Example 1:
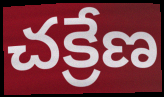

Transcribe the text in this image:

చక్రేణ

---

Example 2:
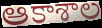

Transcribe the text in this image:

ఆకాశాల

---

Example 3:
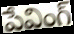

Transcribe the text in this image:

పేవింగ్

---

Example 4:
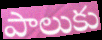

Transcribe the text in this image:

పాలుకు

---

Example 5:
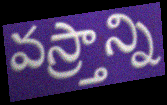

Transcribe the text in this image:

వస్ర్తాన్ని